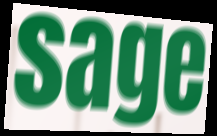
sage